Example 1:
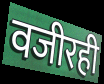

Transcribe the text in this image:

वजीरही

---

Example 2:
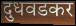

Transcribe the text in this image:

दुधवडकर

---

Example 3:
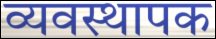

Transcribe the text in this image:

व्यवस्थापक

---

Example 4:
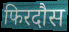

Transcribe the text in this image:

फिरदौस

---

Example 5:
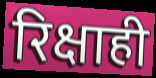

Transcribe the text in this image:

रिक्षाही